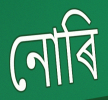
নোৰি